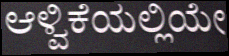
ಆಳ್ವಿಕೆಯಲ್ಲಿಯೇ